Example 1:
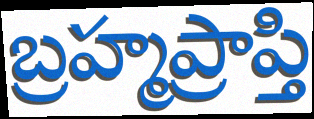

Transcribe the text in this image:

బ్రహ్మప్రాప్తి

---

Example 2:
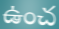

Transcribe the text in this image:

ఉంచ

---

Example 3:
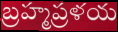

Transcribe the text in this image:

బ్రహ్మప్రళయ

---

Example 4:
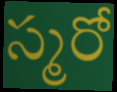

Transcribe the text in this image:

స్మరో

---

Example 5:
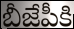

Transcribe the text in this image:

బీజేపీకి